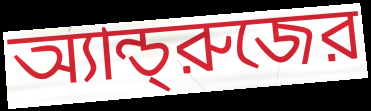
অ্যান্ড্‌রুজের